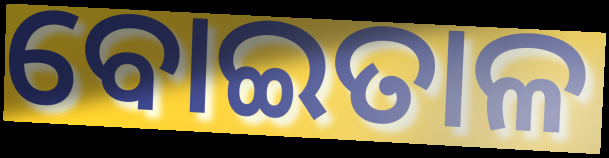
ବୋଇତାଳ